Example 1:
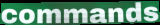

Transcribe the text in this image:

commands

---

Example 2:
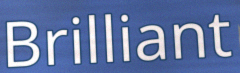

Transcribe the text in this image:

Brilliant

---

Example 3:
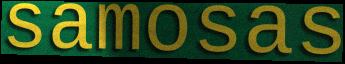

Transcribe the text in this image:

samosas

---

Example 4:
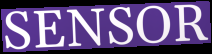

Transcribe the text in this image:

SENSOR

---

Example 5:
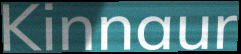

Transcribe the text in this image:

Kinnaur